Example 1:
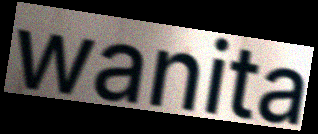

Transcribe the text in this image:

wanita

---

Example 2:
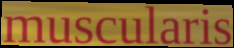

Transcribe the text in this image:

muscularis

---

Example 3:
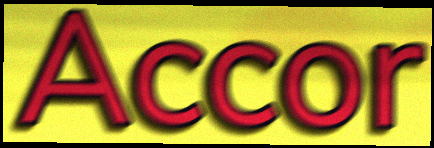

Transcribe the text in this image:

Accor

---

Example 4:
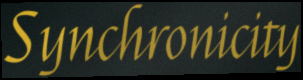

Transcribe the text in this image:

Synchronicity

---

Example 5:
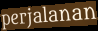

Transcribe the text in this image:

perjalanan